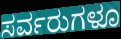
ಸರ್ವರುಗಳೂ